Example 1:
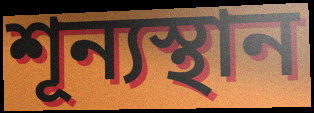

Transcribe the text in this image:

শূন্যস্থান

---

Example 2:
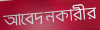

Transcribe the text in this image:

আবেদনকারীর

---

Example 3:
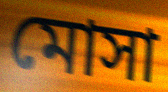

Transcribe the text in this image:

মোসা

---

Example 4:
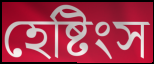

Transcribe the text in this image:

হেষ্টিংস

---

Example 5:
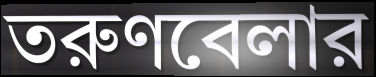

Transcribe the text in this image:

তরুণবেলার